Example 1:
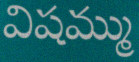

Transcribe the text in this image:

విషమ్ము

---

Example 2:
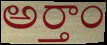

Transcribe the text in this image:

అర్తాం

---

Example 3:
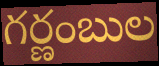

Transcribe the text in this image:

గర్ణంబుల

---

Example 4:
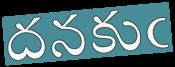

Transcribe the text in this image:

దనకుఁ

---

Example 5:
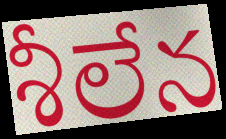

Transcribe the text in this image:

శీలేన